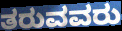
ತರುವವರು